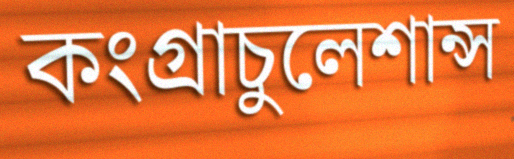
কংগ্রাচুলেশান্স